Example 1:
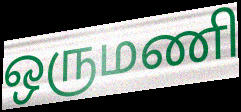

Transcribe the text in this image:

ஒருமணி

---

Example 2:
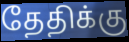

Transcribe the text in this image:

தேதிக்கு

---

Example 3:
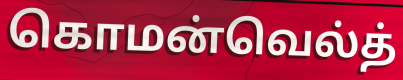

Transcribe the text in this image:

கொமன்வெல்த்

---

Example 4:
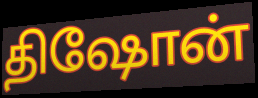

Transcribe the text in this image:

திஷோன்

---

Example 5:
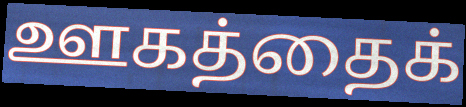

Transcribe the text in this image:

ஊகத்தைக்